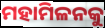
ମହାମିଳନକୁ